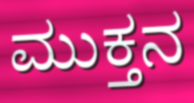
ಮುಕ್ತನ